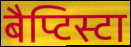
बैप्टिस्टा